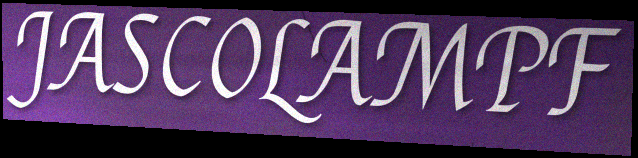
JASCOLAMPF